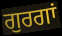
ਗੁਰਗਾਂ